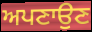
ਅਪਣਾਉਣ